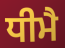
ਧੀਮੈ